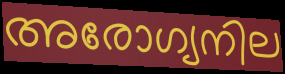
അരോഗ്യനില